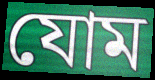
যোম